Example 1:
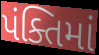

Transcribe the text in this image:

પંક્તિમાં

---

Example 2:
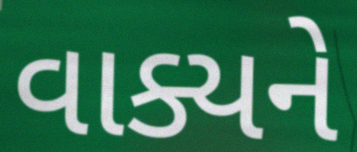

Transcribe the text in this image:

વાક્યને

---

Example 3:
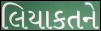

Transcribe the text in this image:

લિયાકતને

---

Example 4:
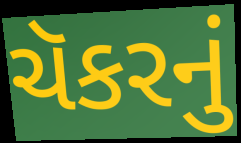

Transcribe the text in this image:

ચૅકરનું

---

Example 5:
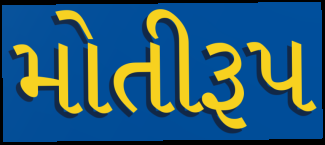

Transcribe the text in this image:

મોતીરૂપ